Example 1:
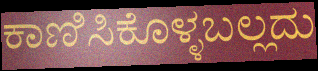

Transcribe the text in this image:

ಕಾಣಿಸಿಕೊಳ್ಳಬಲ್ಲದು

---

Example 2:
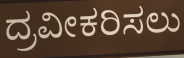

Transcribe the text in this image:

ದ್ರವೀಕರಿಸಲು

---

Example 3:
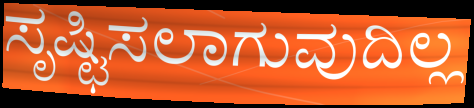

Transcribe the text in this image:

ಸೃಷ್ಟಿಸಲಾಗುವುದಿಲ್ಲ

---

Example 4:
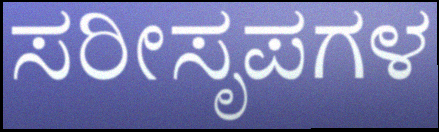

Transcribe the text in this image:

ಸರೀಸೃಪಗಳ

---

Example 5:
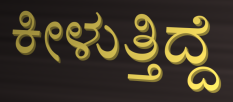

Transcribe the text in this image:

ಕೀಳುತ್ತಿದ್ದೆ